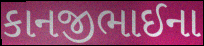
કાનજીભાઈના